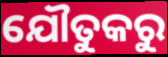
ଯୌତୁକରୁ